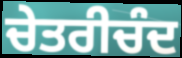
ਚੇਤਰੀਚੰਦ